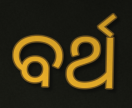
ବର୍ଥ